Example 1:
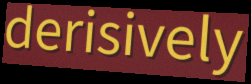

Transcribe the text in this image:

derisively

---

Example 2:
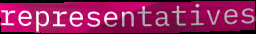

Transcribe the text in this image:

representatives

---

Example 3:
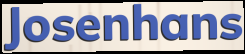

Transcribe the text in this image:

Josenhans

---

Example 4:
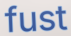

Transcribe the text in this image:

fust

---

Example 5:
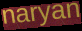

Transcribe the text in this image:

naryan